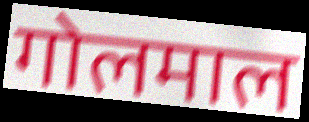
गोलमाल